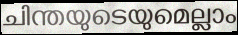
ചിന്തയുടെയുമെല്ലാം